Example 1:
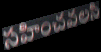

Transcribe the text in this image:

సహించవలసి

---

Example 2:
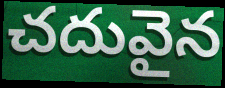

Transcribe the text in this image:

చదువైన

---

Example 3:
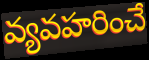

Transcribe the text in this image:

వ్యవహరించే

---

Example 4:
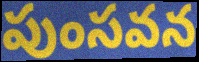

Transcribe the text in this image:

పుంసవన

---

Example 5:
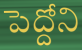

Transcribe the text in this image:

పెద్దోని